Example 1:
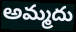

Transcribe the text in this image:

అమ్మదు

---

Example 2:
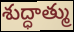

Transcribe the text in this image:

శుద్ధాత్ము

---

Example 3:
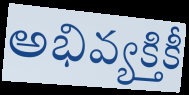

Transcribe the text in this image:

అభివ్యక్తికీ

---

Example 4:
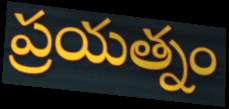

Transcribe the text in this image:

ప్రయత్నం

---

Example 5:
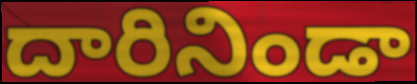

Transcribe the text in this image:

దారినిండా